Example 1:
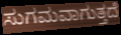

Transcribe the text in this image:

ಸುಗಮವಾಗುತ್ತದೆ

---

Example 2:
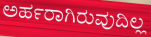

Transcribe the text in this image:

ಅರ್ಹರಾಗಿರುವುದಿಲ್ಲ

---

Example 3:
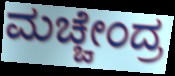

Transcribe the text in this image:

ಮಚ್ಚೇಂದ್ರ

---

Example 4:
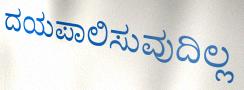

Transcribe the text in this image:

ದಯಪಾಲಿಸುವುದಿಲ್ಲ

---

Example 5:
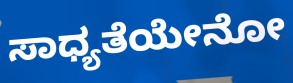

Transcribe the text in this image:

ಸಾಧ್ಯತೆಯೇನೋ